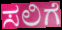
ಸಲಿಗೆ